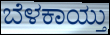
ಬೆಳಕಾಯ್ತು